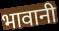
भावानी